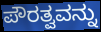
ಪೌರತ್ವವನ್ನು